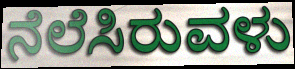
ನೆಲೆಸಿರುವಳು